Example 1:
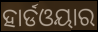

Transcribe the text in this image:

ହାର୍ଡଓୟାର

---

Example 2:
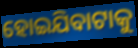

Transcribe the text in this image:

ହୋଇଯିବାଟାକୁ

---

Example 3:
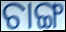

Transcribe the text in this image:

ଚାଙ୍ଗ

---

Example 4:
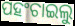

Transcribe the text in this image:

ପହଂଚାଇଲୁ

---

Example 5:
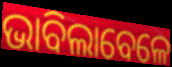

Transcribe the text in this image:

ଭାବିଲାବେଳେ